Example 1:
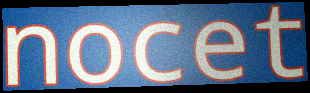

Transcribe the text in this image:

nocet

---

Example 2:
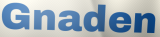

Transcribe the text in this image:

Gnaden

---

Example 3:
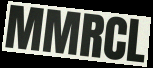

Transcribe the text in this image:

MMRCL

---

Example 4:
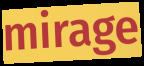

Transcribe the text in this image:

mirage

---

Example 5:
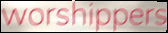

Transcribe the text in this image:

worshippers